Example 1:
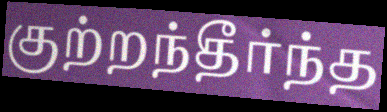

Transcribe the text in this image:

குற்றந்தீர்ந்த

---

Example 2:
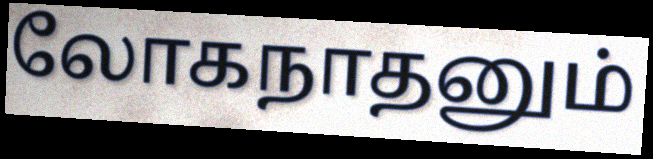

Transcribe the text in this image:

லோகநாதனும்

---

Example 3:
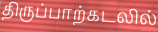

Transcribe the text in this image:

திருப்பாற்கடலில்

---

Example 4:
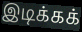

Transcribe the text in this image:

இடிக்கக்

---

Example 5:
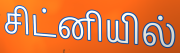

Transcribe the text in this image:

சிட்னியில்